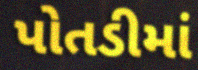
પોતડીમાં